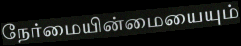
நேர்மையின்மையையும்